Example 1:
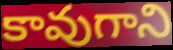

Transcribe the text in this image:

కావుగాని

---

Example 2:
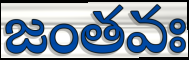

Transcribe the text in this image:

జంతవః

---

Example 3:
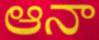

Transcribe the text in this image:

ఆనా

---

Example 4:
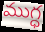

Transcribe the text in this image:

ముగ్ధ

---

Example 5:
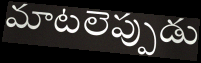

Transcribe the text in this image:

మాటలెప్పుడు